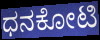
ಧನಕೋಟಿ